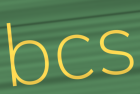
bcs